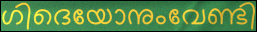
ഗിദെയോനുംവേണ്ടി